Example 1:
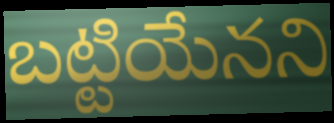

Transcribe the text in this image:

బట్టియేనని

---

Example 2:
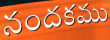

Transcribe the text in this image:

నందకము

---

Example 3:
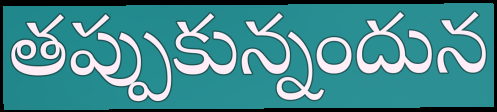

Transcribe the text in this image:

తప్పుకున్నందున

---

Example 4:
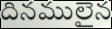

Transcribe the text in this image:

దినములైన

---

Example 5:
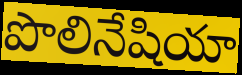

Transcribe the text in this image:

పొలినేషియా